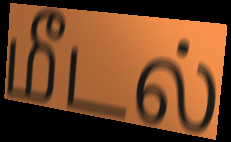
மீடல்